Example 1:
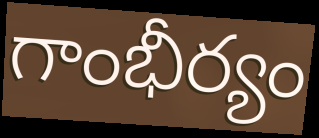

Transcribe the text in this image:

గాంభీర్యం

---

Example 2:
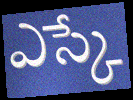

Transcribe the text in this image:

ఎస్కే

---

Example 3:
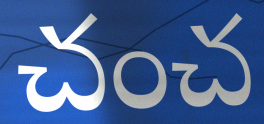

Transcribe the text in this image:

చంచ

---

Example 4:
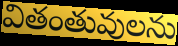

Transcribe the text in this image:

వితంతువులను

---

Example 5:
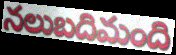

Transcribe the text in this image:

నలుబదిమంది